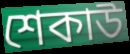
শেকাউ